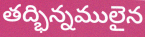
తద్భిన్నములైన